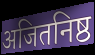
अजितनिष्ठ